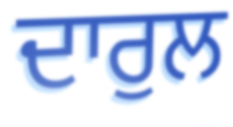
ਦਾਰੁਲ